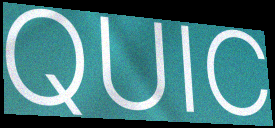
QUIC